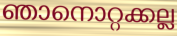
ഞാനൊറ്റക്കല്ല